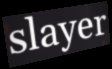
slayer